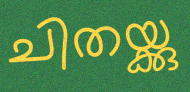
ചിതയ്ക്കു